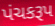
પંચકરૂપ